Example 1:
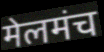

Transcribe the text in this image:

मेलमंच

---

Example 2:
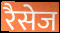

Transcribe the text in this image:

रैसेज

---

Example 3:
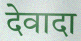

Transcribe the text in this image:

देवादा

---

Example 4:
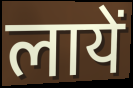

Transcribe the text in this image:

लायें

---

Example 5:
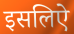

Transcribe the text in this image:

इसलिऐ